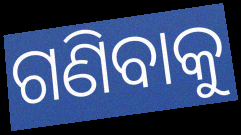
ଗଣିବାକୁ